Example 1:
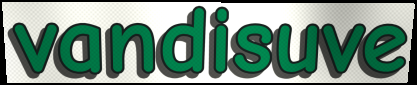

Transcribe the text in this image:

vandisuve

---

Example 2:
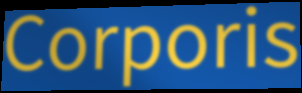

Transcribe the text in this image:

Corporis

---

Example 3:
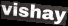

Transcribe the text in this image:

vishay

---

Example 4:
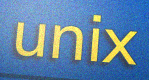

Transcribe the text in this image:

unix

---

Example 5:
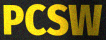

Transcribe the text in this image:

PCSW